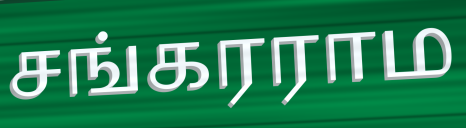
சங்கரராம